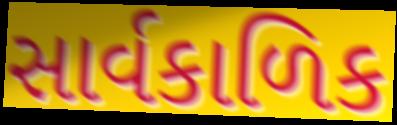
સાર્વકાળિક